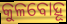
କୁଳବୋହୂ